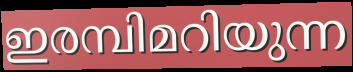
ഇരമ്പിമറിയുന്ന